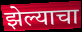
झेल्याचा